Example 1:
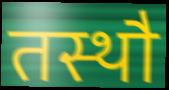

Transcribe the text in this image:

तस्थौ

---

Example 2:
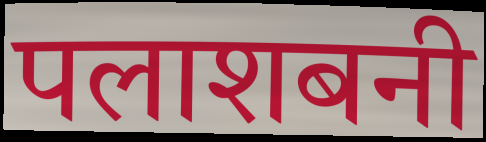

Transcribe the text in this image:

पलाशबनी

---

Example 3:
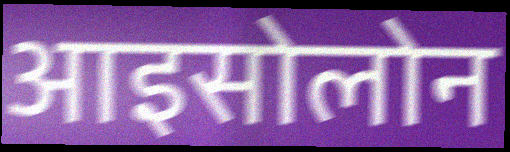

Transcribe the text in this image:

आइसोलोन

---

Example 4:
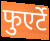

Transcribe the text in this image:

फुएर्टे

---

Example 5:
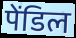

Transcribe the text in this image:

पेंडिल